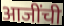
आजींची